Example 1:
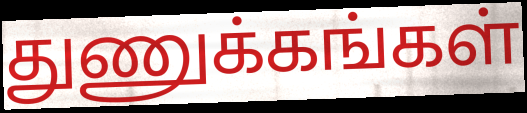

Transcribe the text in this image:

துணுக்கங்கள்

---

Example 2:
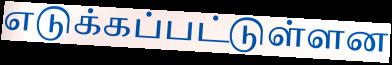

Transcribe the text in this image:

எடுக்கப்பட்டுள்ளன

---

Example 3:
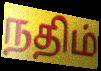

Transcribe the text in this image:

நதிம்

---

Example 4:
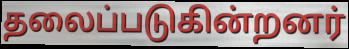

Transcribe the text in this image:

தலைப்படுகின்றனர்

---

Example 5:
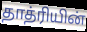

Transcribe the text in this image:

தாத்ரியின்